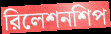
রিলেশনশিপ